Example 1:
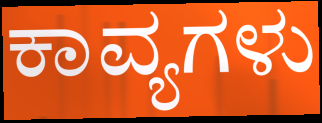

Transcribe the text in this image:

ಕಾವ್ಯಗಳು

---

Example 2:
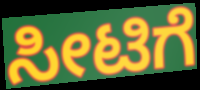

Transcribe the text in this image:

ಸೀಟಿಗೆ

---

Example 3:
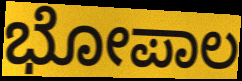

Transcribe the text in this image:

ಭೋಪಾಲ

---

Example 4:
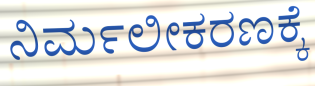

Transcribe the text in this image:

ನಿರ್ಮಲೀಕರಣಕ್ಕೆ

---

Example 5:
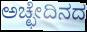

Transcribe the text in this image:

ಅಚ್ಛೇದಿನದ